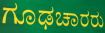
ಗೂಢಚಾರರು